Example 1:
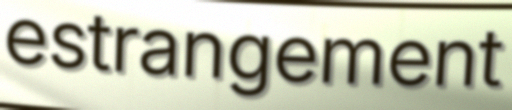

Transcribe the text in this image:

estrangement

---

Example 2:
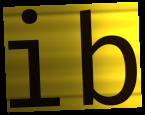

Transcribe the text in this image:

ib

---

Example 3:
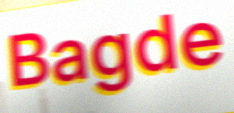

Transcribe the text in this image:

Bagde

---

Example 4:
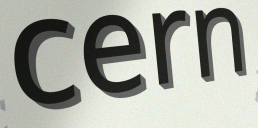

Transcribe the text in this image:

cern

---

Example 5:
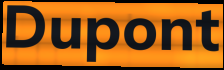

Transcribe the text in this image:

Dupont